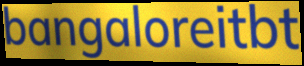
bangaloreitbt